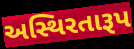
અસ્થિરતારૂપ